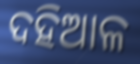
ଦହିଆଳ